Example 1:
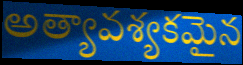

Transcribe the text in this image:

అత్యావశ్యకమైన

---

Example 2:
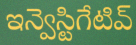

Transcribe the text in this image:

ఇన్వెస్టిగేటివ్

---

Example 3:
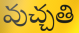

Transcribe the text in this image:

వుచ్చతి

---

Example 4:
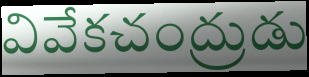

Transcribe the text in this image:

వివేకచంద్రుడు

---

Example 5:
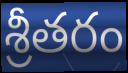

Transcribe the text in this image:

శ్రీతరం